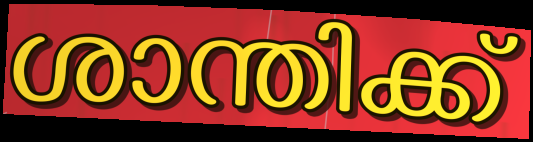
ശാന്തിക്ക്